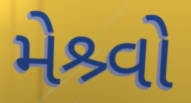
મેશ્ર્વો